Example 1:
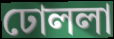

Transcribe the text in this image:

ঢোললা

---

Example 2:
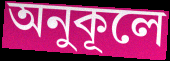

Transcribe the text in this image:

অনুকূলে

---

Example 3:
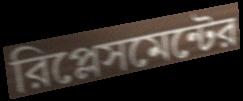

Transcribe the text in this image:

রিপ্লেসমেন্টের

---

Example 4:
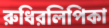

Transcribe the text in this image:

রুধিরলিপিকা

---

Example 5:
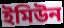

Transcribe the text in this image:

ইমিউন